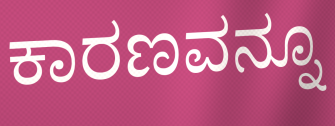
ಕಾರಣವನ್ನೂ